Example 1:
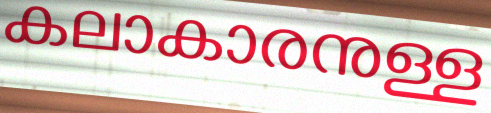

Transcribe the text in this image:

കലാകാരനുള്ള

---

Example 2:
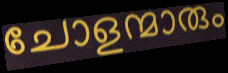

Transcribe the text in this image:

ചോളന്മാരും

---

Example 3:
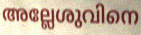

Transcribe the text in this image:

അല്ലേശുവിനെ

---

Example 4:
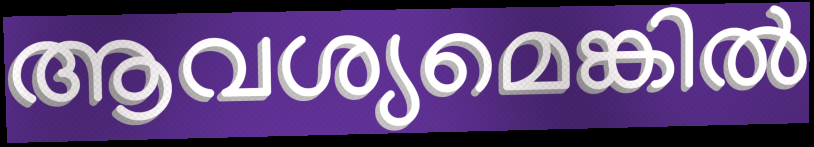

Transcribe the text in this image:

ആവശ്യമെങ്കിൽ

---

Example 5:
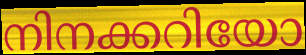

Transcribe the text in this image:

നിനക്കറിയോ